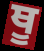
ਥੂ